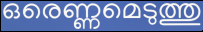
ഒരെണ്ണമെടുത്തു